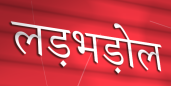
लड़भड़ोल